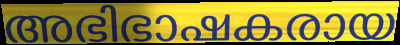
അഭിഭാഷകരായ